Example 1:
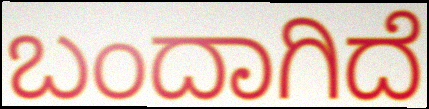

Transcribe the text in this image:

ಬಂದಾಗಿದೆ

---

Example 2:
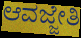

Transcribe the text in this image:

ಆವಜ್ಜೇತಿ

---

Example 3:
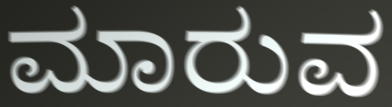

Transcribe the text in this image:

ಮಾರುವ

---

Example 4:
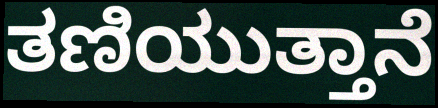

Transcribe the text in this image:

ತಣಿಯುತ್ತಾನೆ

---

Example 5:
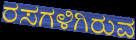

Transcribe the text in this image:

ರಸಗಳಿಗಿರುವ